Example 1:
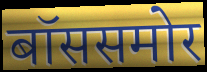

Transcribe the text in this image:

बॉससमोर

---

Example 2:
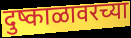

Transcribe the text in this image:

दुष्काळावरच्या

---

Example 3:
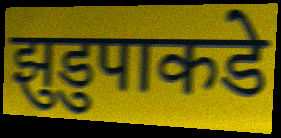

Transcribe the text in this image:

झुडुपाकडे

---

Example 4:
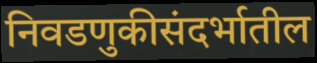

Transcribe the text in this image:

निवडणुकीसंदर्भातील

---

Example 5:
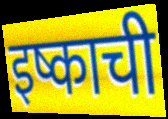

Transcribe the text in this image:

इष्काची